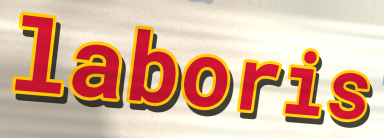
laboris